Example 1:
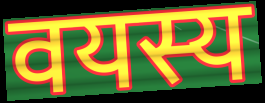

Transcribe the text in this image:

वयस्य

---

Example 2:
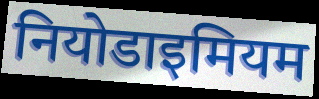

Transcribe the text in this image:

नियोडाइमियम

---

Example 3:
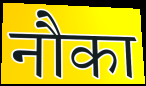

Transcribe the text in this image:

नौका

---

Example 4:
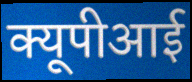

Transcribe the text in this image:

क्यूपीआई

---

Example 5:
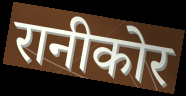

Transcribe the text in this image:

रानीकोर